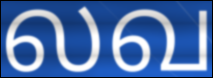
லவ